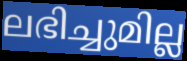
ലഭിച്ചുമില്ല